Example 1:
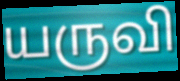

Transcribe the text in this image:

யருவி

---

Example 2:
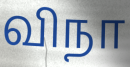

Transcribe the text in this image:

விநா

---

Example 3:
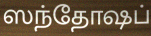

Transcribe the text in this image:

ஸந்தோஷப்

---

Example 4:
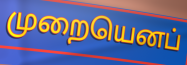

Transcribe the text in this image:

முறையெனப்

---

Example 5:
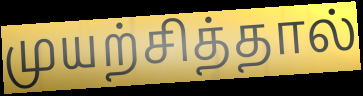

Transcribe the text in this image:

முயற்சித்தால்